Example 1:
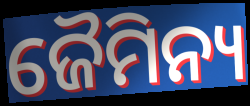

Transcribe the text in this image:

ଜୈମିନ୍ୟ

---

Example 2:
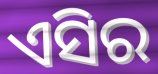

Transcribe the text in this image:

ଏସିର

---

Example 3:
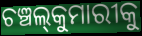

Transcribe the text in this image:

ଚଞ୍ଚଲ୍‍କୁମାରୀକୁ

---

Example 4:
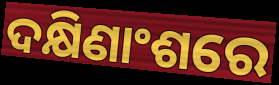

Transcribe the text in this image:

ଦକ୍ଷିଣାଂଶରେ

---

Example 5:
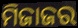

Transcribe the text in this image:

ମିଜାଜର